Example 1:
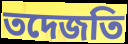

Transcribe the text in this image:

তদেজতি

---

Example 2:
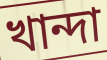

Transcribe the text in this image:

খান্দা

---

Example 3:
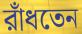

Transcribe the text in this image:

রাঁধতেন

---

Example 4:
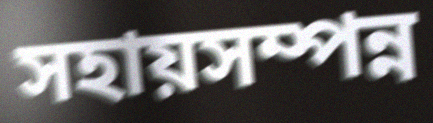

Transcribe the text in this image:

সহায়সম্পন্ন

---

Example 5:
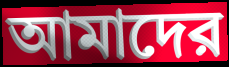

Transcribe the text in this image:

আমাদের